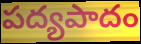
పద్యపాదం